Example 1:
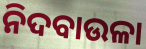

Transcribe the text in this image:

ନିଦବାଉଳା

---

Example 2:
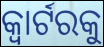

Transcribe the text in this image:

କ୍ୱାର୍ଟରକୁ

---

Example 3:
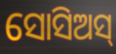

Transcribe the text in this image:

ସୋସିଅସ୍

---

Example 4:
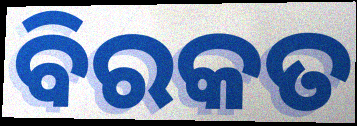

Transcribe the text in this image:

ବିରକତ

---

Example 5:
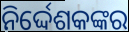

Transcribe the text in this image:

ନିର୍ଦ୍ଦେଶକଙ୍କର